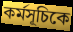
কর্মসূচিকে